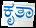
ಕೃತಾ